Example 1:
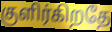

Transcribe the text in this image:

குளிர்கிறதே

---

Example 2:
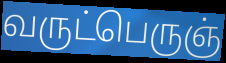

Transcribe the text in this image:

வருட்பெருஞ்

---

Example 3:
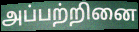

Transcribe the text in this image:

அப்பற்றினை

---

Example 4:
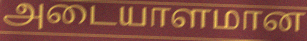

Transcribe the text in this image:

அடையாளமான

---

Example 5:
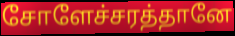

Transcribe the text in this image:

சோளேச்சரத்தானே